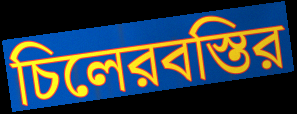
চিলেরবস্তির